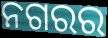
ନଗରର